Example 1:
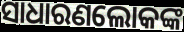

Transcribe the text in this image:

ସାଧାରଣଲୋକଙ୍କ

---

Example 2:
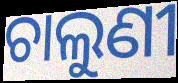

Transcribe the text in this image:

ଚାଲୁଣୀ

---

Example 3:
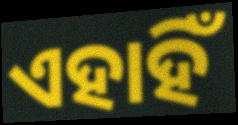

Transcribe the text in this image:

ଏହାହିଁ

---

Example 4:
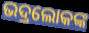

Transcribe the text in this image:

ଭଦ୍ରଲୋକଙ୍କ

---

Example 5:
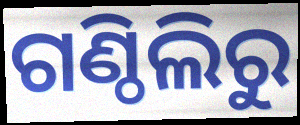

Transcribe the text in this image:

ଗଣ୍ଠିଲିରୁ